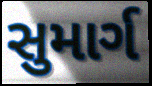
સુમાર્ગ